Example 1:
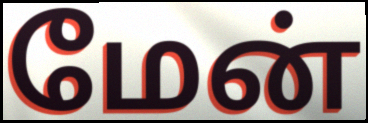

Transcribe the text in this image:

மேன்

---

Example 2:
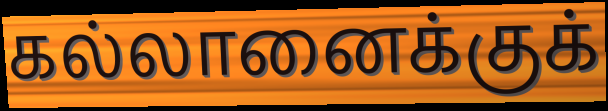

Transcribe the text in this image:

கல்லானைக்குக்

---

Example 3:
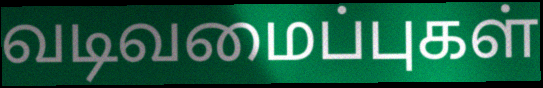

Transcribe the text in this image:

வடிவமைப்புகள்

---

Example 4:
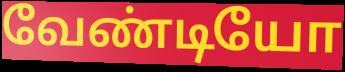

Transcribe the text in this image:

வேண்டியோ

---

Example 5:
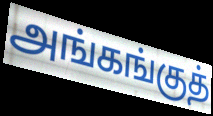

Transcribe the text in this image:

அங்கங்குத்